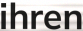
ihren